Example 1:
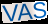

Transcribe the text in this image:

VAS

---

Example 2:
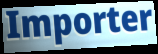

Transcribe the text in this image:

Importer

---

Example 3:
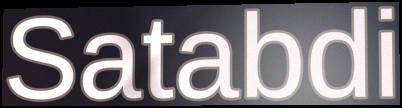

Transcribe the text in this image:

Satabdi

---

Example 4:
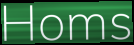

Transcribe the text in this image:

Homs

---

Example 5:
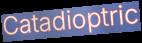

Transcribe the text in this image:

Catadioptric